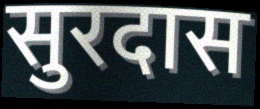
सुरदास